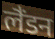
लैंडन